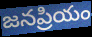
జనప్రియం